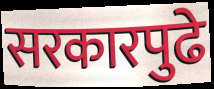
सरकारपुढे